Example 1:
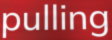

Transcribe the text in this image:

pulling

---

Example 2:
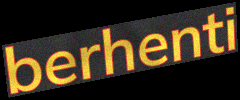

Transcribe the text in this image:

berhenti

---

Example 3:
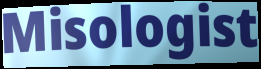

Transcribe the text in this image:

Misologist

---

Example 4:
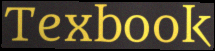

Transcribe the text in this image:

Texbook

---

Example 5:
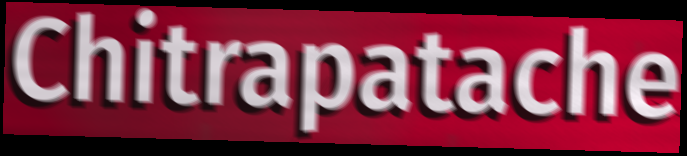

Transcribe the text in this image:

Chitrapatache